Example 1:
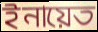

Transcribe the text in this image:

ইনায়েত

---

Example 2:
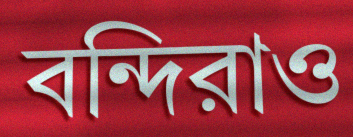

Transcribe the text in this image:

বন্দিরাও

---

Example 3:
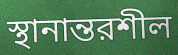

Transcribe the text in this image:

স্থানান্তরশীল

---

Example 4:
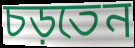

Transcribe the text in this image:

চড়তেন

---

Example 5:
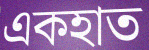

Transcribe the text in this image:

একহাত